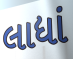
લાદ્યાં